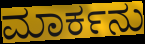
ಮಾರ್ಕನು